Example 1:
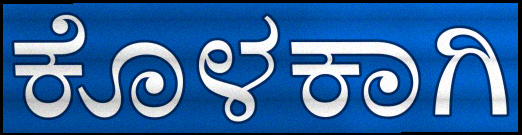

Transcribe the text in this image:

ಕೊಳಕಾಗಿ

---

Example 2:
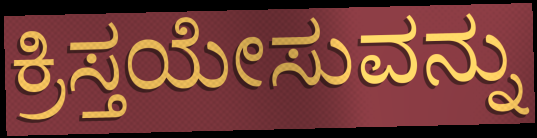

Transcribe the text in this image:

ಕ್ರಿಸ್ತಯೇಸುವನ್ನು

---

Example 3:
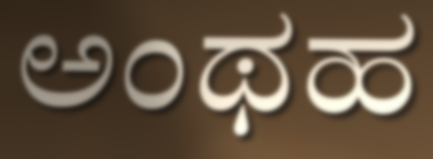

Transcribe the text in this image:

ಅಂಥಹ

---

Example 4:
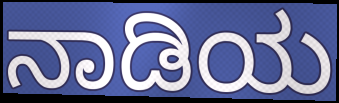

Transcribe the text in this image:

ನಾಡಿಯ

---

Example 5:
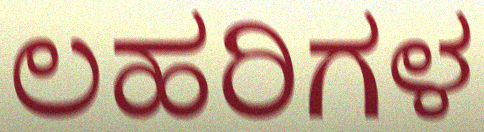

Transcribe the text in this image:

ಲಹರಿಗಳ